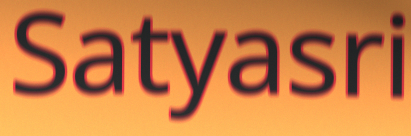
Satyasri